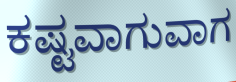
ಕಷ್ಟವಾಗುವಾಗ